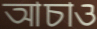
আচাও